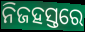
ନିଜହସ୍ତରେ